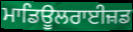
ਮਾਡਿਊਲਰਾਈਜ਼ਡ